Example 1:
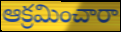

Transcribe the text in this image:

ఆక్రమించారా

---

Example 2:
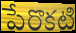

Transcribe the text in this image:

పేరొకటి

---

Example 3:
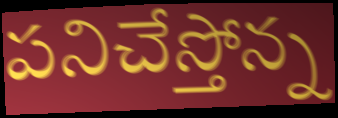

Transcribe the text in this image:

పనిచేస్తోన్న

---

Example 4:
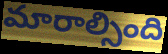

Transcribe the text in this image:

మారాల్సింది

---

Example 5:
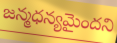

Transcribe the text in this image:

జన్మధన్యమైందని